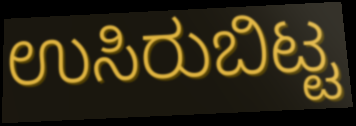
ಉಸಿರುಬಿಟ್ಟ